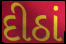
દીઠાં